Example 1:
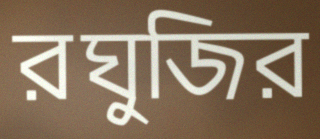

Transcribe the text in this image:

রঘুজির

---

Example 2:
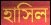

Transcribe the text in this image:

হাসিল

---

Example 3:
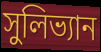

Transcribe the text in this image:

সুলিভ্যান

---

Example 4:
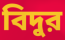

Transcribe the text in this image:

বিদুর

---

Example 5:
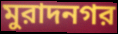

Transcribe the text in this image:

মুরাদনগর